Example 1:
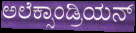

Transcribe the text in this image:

ಅಲೆಕ್ಸಾಂಡ್ರಿಯನ್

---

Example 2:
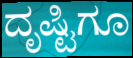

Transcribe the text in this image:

ದೃಷ್ಟಿಗೂ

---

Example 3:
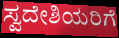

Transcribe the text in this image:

ಸ್ವದೇಶಿಯರಿಗೆ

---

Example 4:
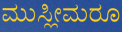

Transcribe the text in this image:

ಮುಸ್ಲೀಮರೂ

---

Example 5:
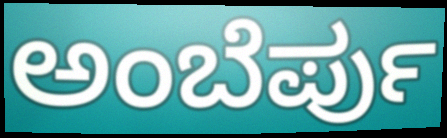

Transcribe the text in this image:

ಅಂಬೆರ್ಪು